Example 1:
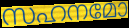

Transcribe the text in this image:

സഹനമോ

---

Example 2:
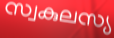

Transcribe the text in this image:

സ്വകുലസ്യ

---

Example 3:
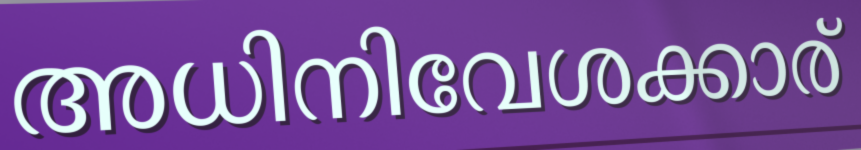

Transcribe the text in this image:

അധിനിവേശക്കാര്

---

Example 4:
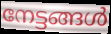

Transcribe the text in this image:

നേട്ടങ്ങൾ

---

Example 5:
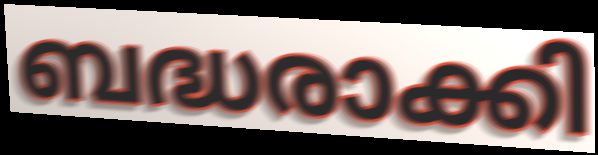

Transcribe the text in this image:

ബദ്ധരാക്കി